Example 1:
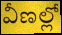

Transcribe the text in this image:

వీణల్లో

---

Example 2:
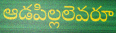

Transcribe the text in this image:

ఆడపిల్లలెవరూ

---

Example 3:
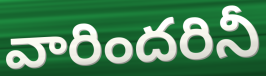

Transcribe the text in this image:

వారిందరినీ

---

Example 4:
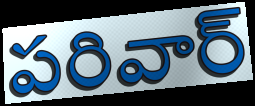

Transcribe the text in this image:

పరివార్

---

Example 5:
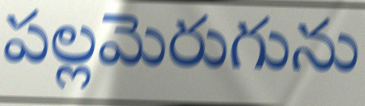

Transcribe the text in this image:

పల్లమెరుగును